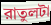
রাতুলটা